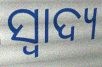
ସ୍ଵାଦ୍ୟ